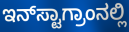
ಇನ್‌ಸ್ಟಾಗ್ರಾಂನಲ್ಲಿ